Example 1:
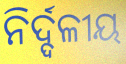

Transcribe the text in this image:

ନିର୍ଦ୍ଦଳୀୟ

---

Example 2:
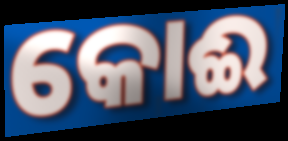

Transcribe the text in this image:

କୋଈ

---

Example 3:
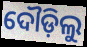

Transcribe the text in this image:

ଦୌଡ଼ିଲୁ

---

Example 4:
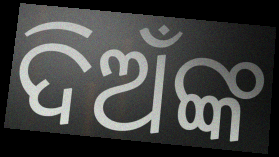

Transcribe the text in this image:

ଦିଅଁଙ୍କ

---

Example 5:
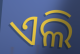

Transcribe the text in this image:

ଏଲି